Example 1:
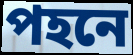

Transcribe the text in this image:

পহনে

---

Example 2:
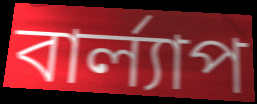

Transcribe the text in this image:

বার্ল্যাপ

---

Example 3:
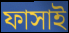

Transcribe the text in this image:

ফাসাই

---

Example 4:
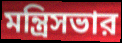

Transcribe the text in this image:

মন্ত্রিসভার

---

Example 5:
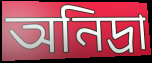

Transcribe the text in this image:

অনিদ্রা